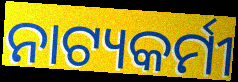
ନାଟ୍ୟକର୍ମୀ